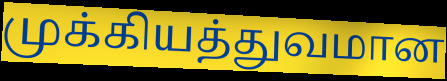
முக்கியத்துவமான